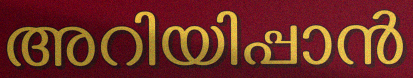
അറിയിപ്പാൻ